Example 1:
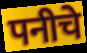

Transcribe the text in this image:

पनीचे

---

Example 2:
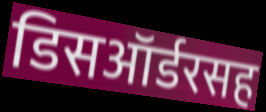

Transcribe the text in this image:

डिसऑर्डरसह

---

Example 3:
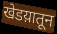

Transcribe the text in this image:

खेडय़ातून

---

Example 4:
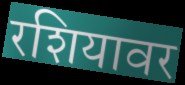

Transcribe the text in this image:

रशियावर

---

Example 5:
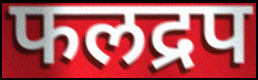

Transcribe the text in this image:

फलद्रप